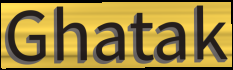
Ghatak